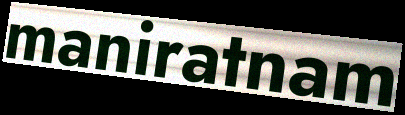
maniratnam